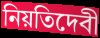
নিয়তিদেবী